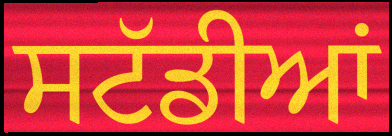
ਸਟੱਡੀਆਂ